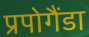
प्रपोगैंडा